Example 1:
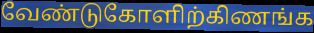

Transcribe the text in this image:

வேண்டுகோளிற்கிணங்க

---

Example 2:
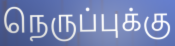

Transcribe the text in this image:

நெருப்புக்கு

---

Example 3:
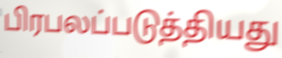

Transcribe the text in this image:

பிரபலப்படுத்தியது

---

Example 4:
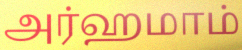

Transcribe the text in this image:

அர்ஹமாம்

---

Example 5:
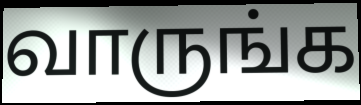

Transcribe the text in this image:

வாருங்க